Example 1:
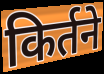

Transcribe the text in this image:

किर्तने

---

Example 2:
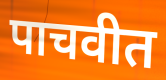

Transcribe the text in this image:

पाचवीत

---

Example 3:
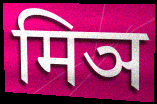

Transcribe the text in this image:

मिञ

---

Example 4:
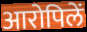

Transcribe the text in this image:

आरोपिलें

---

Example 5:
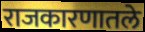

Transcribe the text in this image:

राजकारणातले